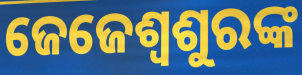
ଜେଜେଶ୍ୱଶୁରଙ୍କ